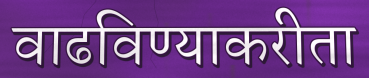
वाढविण्याकरीता